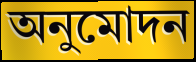
অনুমোদন